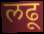
लढू